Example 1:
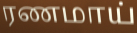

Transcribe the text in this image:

ரணமாய்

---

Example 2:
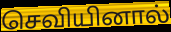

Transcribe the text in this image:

செவியினால்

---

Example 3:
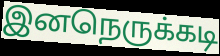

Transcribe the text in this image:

இனநெருக்கடி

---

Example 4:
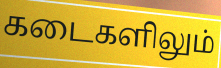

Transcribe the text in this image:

கடைகளிலும்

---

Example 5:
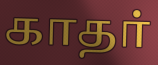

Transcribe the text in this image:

காதர்